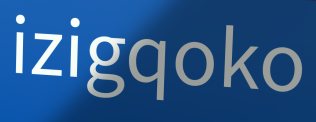
izigqoko